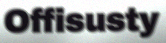
Offisusty